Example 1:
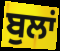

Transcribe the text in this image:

ਬੁਲਾਂ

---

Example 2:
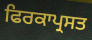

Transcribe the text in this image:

ਫਿਰਕਾਪ੍ਰਸਤ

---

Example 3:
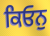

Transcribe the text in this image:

ਕਿਓਨੁ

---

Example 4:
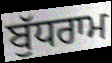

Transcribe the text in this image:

ਬੁੱਧਰਾਮ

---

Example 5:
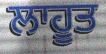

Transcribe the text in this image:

ਲਾਹੂਤ